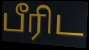
பீரிட